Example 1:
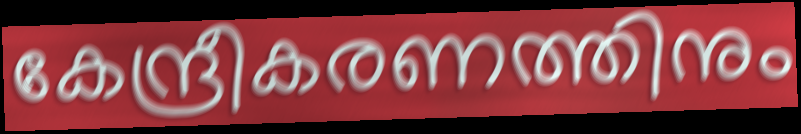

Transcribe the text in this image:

കേന്ദ്രീകരണത്തിനും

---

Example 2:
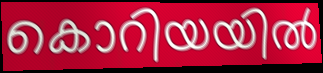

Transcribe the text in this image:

കൊറിയയിൽ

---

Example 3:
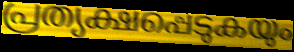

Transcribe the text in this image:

പ്രത്യക്ഷപ്പെടുകയും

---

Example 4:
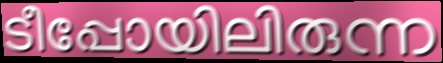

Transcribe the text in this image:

ടീപ്പോയിലിരുന്ന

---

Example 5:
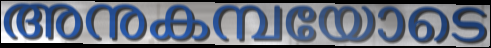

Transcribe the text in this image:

അനുകമ്പയോടെ